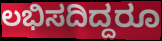
ಲಭಿಸದಿದ್ದರೂ